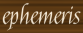
ephemeris